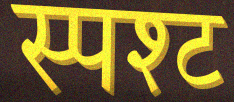
स्पश्ट